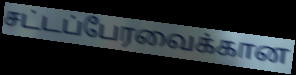
சட்டப்பேரவைக்கான